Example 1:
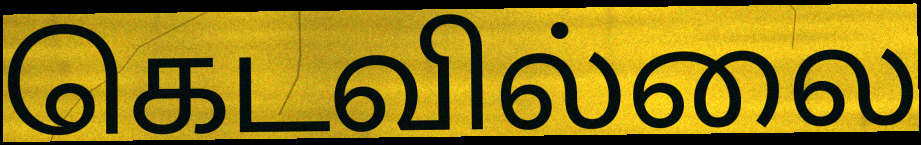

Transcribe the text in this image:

கெடவில்லை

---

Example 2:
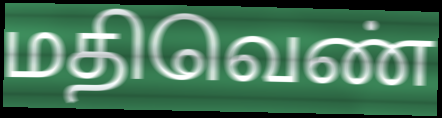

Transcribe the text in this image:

மதிவெண்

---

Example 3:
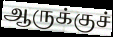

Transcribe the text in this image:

ஆருக்குச்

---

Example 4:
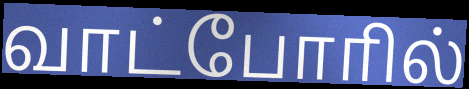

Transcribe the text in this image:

வாட்போரில்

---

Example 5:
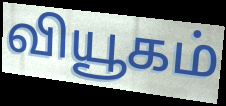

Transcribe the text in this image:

வியூகம்